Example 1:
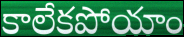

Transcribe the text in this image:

కాలేకపోయాం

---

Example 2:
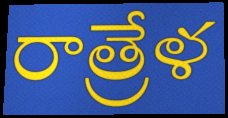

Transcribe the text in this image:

రాత్రేళ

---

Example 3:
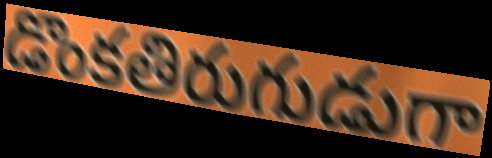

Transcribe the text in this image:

డొంకతిరుగుడుగా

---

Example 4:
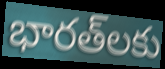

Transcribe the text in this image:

భారత్‌లకు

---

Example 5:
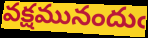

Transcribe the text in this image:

వక్షమునందుఁ